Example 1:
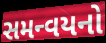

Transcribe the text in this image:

સમન્વયનો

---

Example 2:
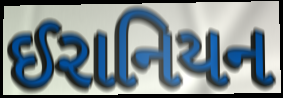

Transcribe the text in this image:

ઈરાનિયન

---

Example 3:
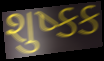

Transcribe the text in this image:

શુષ્કક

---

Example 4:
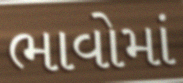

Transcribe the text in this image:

ભાવોમાં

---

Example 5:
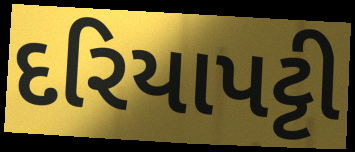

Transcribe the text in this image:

દરિયાપટ્ટી